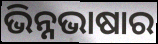
ଭିନ୍ନଭାଷାର